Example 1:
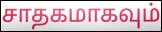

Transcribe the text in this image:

சாதகமாகவும்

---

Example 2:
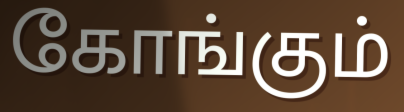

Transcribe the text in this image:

கோங்கும்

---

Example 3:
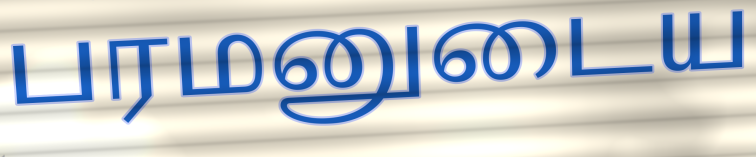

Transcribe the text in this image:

பரமனுடைய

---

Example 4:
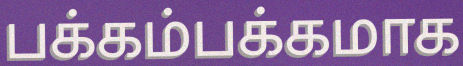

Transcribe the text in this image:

பக்கம்பக்கமாக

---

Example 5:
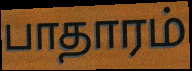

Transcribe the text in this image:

பாதாரம்